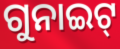
ଗୁନାଇଟ୍